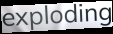
exploding